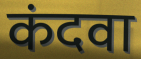
कंदवा